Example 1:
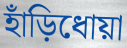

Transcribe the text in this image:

হাঁড়িধোয়া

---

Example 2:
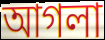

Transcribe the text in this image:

আগলা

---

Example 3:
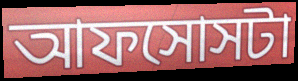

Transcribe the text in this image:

আফসোসটা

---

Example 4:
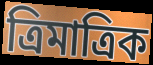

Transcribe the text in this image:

ত্রিমাত্রিক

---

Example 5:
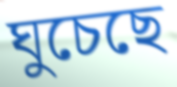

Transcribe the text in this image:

ঘুচেছে